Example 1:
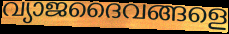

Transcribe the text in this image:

വ്യാജദൈവങ്ങളെ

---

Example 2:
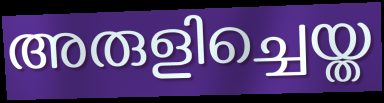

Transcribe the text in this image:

അരുളിച്ചെയ്ത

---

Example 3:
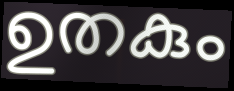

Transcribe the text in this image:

ഉതകും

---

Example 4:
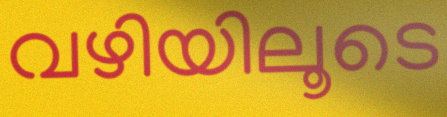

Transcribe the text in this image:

വഴിയിലൂടെ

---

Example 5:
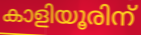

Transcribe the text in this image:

കാളിയൂരിന്